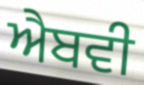
ਐਬਵੀ